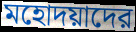
মহোদয়াদের